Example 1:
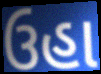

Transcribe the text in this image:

ઉહા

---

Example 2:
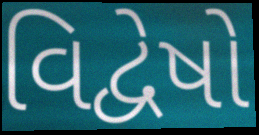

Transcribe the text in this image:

વિદ્વેષો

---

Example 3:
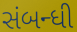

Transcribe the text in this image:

સંબન્ધી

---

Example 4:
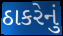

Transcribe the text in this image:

ઠાકરેનું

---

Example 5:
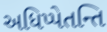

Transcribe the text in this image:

અધિપ્પેતન્તિ